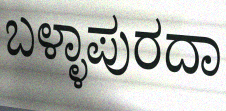
ಬಳ್ಳಾಪುರದಾ